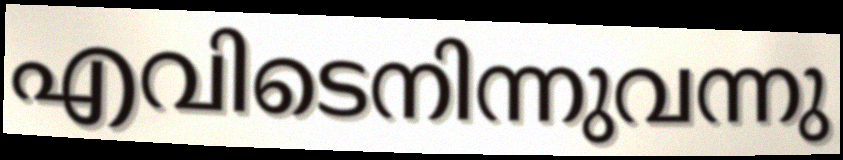
എവിടെനിന്നുവന്നു